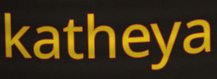
katheya